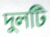
দুলটি